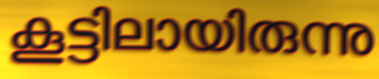
കൂട്ടിലായിരുന്നു